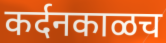
कर्दनकाळच